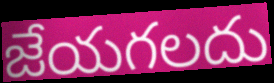
జేయగలదు